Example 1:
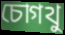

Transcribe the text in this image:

চোগথু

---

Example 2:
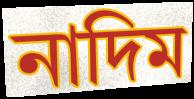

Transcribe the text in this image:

নাদিম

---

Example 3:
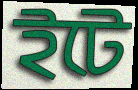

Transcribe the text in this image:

ইটে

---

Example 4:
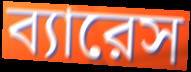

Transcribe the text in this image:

ব্যারেস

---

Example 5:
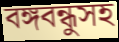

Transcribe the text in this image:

বঙ্গবন্ধুসহ